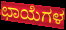
ಛಾಯೆಗಳ